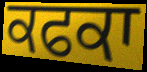
ਕਫਕਾ